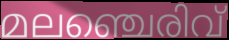
മലഞ്ചെരിവ്